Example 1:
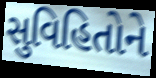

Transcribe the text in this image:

સુવિહિતોને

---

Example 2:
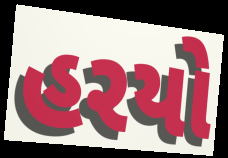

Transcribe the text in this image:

હરયો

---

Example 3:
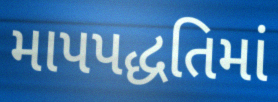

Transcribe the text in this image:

માપપદ્ધતિમાં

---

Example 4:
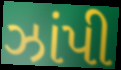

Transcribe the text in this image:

ઝાંપી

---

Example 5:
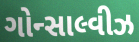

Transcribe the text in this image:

ગોન્સાલ્વીઝ